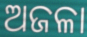
ଅଜଳା